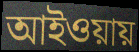
আইওয়ায়